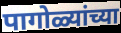
पागोळ्यांच्या